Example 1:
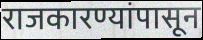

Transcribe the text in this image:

राजकारण्यांपासून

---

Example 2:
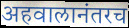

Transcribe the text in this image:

अहवालानंतरच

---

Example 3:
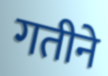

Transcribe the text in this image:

गतीने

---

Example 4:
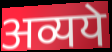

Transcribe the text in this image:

अव्यये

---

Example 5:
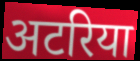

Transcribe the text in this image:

अटरिया